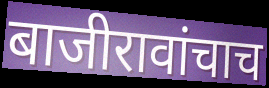
बाजीरावांचाच